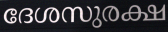
ദേശസുരക്ഷ